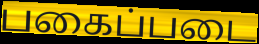
பகைப்படை